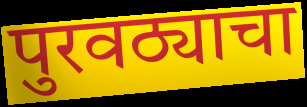
पुरवठ्याचा